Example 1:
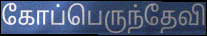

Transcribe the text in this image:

கோப்பெருந்தேவி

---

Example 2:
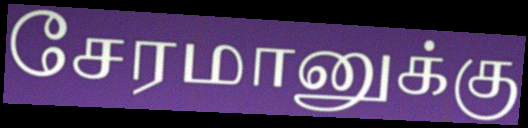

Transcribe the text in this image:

சேரமானுக்கு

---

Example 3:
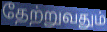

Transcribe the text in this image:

தேற்றுவதும்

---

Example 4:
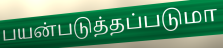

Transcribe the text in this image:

பயன்படுத்தப்படுமா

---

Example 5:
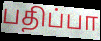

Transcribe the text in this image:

பதிப்பா